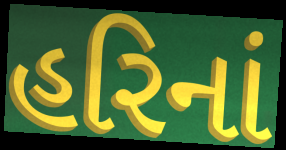
હરિનાં